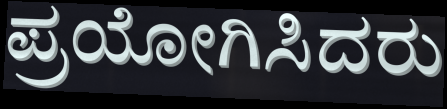
ಪ್ರಯೋಗಿಸಿದರು